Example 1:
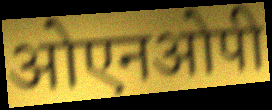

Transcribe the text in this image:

ओएनओपी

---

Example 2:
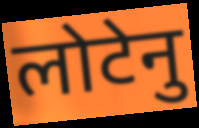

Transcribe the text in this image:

लोटेनु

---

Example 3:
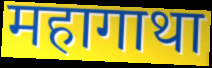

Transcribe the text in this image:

महागाथा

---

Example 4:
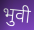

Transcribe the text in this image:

भुवी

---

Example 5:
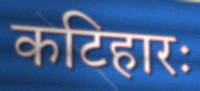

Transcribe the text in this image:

कटिहारः